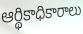
ఆర్థికాధికారాలు